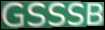
GSSSB